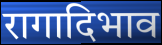
रागादिभाव